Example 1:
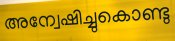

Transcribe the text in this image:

അന്വേഷിച്ചുകൊണ്ടു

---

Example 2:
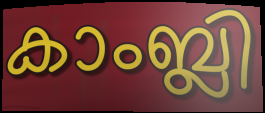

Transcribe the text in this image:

കാംബ്ലി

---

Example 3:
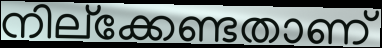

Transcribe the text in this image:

നില്ക്കേണ്ടതാണ്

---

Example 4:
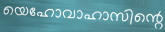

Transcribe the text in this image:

യെഹോവാഹാസിന്റെ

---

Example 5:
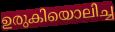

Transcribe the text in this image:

ഉരുകിയൊലിച്ച